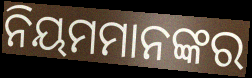
ନିୟମମାନଙ୍କର